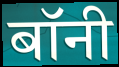
बॉनी